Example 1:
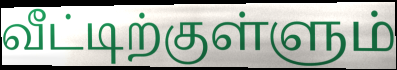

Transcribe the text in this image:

வீட்டிற்குள்ளும்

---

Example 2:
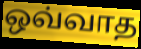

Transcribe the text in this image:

ஒவ்வாத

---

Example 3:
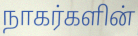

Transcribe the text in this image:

நாகர்களின்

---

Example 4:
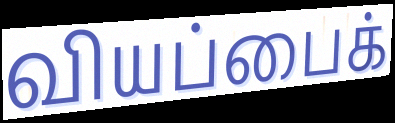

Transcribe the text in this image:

வியப்பைக்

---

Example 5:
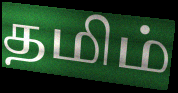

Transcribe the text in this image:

தமிம்